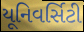
યૂનિવર્સિટી